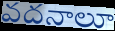
వదనాలూ